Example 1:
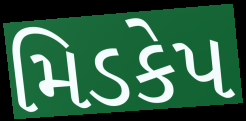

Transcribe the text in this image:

મિડકેપ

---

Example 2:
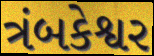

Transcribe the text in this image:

ત્રંબકેશ્વર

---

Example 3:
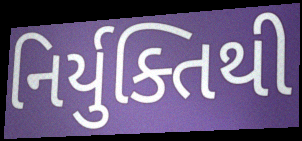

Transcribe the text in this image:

નિર્યુક્તિથી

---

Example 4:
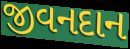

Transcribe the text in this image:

જીવનદાન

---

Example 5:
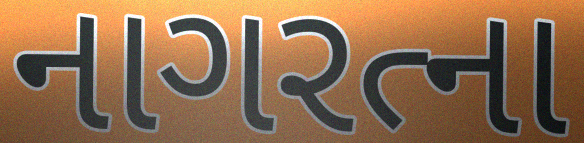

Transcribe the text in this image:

નાગરત્ના